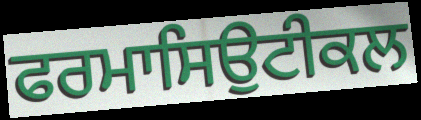
ਫਰਮਾਸਿਉਟੀਕਲ